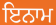
ਇਨਾਮ